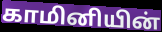
காமினியின்